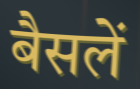
बैसलें